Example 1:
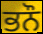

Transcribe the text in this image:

ਭਨੌ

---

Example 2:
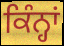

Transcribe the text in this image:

ਕਿੰਨ੍ਹਾਂ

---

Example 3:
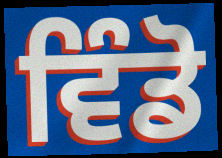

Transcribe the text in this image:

ਵਿੰਡੋ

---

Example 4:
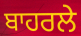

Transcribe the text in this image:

ਬਾਹਰਲੇ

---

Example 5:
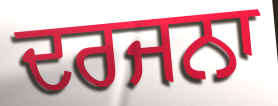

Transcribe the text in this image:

ਦਰਜਨਾ